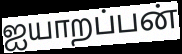
ஐயாறப்பன்